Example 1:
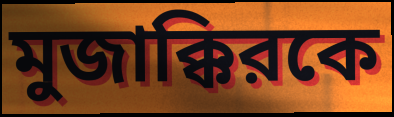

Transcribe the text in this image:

মুজাক্কিরকে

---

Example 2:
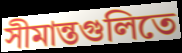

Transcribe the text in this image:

সীমান্তগুলিতে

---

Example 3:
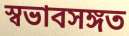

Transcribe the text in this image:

স্বভাবসঙ্গত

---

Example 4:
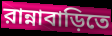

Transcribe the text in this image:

রান্নাবাড়িতে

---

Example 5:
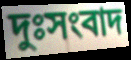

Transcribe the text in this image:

দুঃসংবাদ